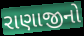
રાણાજીનો